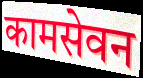
कामसेवन